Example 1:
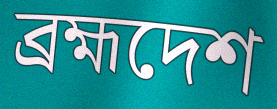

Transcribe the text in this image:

ব্রহ্মদেশ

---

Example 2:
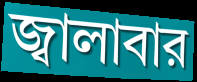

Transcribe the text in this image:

জ্বালাবার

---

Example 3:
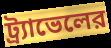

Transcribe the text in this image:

ট্র্যাভেলের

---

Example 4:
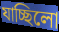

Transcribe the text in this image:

যাচ্ছিলো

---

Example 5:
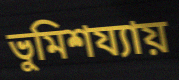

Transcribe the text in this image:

ভুমিশয্যায়